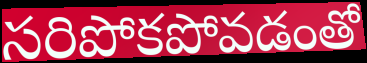
సరిపోకపోవడంతో